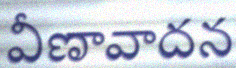
వీణావాదన